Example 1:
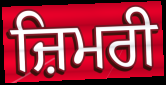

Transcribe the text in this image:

ਜ਼ਿਮਰੀ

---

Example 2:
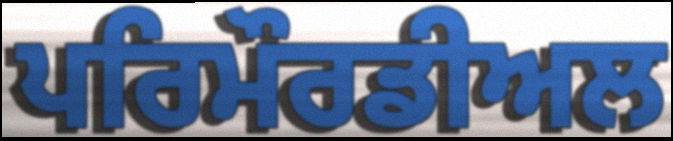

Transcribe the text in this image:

ਪਰਿਮੌਰਡੀਅਲ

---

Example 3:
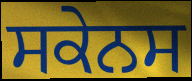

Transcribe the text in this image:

ਸਕੇਨਸ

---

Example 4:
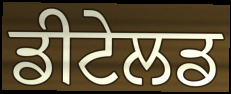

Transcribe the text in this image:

ਡੀਟੇਲਡ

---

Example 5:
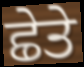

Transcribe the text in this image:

ਛੇਤੇ